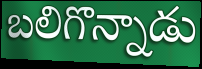
బలిగొన్నాడు